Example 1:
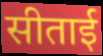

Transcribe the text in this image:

सीताई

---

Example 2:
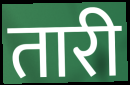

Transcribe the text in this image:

तारी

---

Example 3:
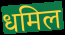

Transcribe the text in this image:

धमिल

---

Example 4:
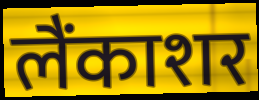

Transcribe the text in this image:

लैंकाशर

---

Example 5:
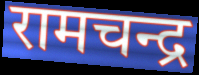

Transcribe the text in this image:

रामचन्‍द्र